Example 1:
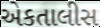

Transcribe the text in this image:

એકતાલીસ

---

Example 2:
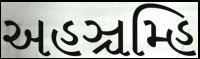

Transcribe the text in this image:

અહઞ્ચમ્હિ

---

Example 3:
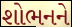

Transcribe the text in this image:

શોભનને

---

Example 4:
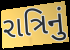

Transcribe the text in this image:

રાત્રિનું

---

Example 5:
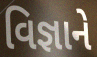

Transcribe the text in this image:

વિજ્ઞાને